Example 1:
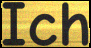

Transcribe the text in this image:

Ich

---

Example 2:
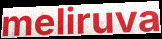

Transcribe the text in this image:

meliruva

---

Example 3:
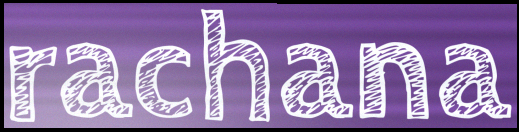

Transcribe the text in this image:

rachana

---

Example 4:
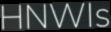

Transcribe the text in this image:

HNWIs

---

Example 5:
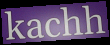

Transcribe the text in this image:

kachh